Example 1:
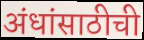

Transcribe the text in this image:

अंधांसाठीची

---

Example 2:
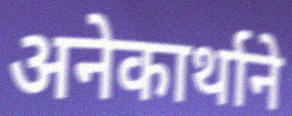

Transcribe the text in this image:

अनेकार्थाने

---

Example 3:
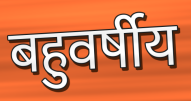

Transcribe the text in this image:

बहुवर्षीय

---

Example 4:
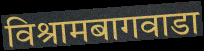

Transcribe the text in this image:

विश्रामबागवाडा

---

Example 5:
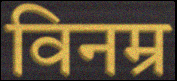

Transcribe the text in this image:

विनम्र